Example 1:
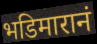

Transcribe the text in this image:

भडिमारानं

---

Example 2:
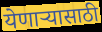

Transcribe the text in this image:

येणाऱ्यासाठी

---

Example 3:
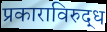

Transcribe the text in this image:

प्रकाराविरुद्ध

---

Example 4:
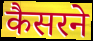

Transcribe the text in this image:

कैसरने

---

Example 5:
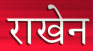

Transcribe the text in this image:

राखेन